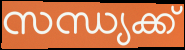
സന്ധ്യക്ക്